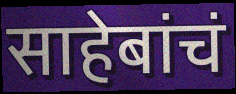
साहेबांचं